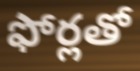
ఫోర్లతో